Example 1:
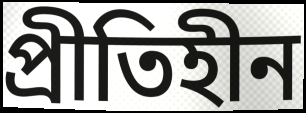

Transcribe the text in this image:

প্রীতিহীন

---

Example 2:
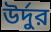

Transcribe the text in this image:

উর্দুর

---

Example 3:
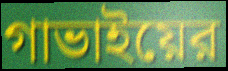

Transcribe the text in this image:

গাভাইয়ের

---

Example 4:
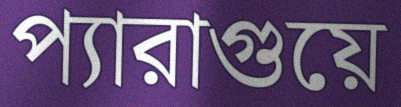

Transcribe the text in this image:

প্যারাগুয়ে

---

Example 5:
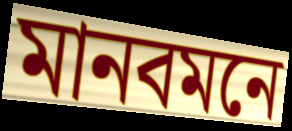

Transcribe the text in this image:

মানবমনে